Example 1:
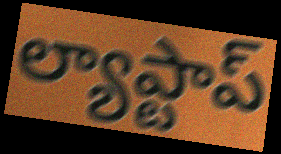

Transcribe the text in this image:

ల్యాప్టాప్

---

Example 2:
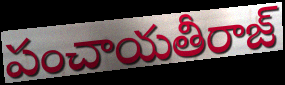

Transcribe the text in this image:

పంచాయతీరాజ్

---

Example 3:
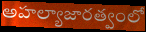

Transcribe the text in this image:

అహల్యాజారత్వంలో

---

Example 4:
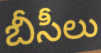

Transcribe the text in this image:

బీసీలు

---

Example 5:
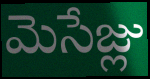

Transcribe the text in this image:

మెసేజ్లు